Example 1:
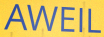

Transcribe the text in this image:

AWEIL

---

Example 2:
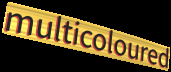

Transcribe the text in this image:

multicoloured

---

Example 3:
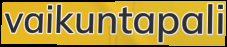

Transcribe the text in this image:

vaikuntapali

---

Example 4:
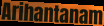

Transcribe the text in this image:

Arihantanam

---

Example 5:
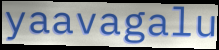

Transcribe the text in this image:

yaavagalu